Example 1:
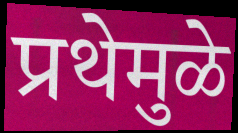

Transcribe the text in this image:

प्रथेमुळे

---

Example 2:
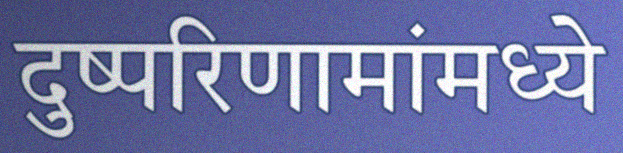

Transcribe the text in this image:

दुष्परिणामांमध्ये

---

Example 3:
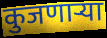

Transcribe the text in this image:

कुजणाऱ्या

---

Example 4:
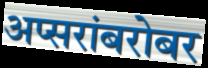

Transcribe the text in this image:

अप्सरांबरोबर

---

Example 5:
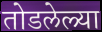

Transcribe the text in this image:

तोडलेल्या